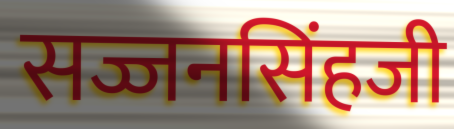
सज्जनसिंहजी